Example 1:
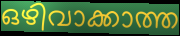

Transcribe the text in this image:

ഒഴിവാക്കാത്ത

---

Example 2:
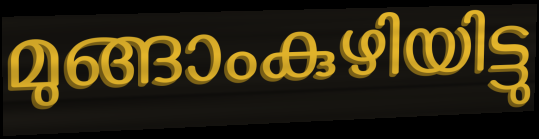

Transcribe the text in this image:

മുങ്ങാംകുഴിയിട്ടു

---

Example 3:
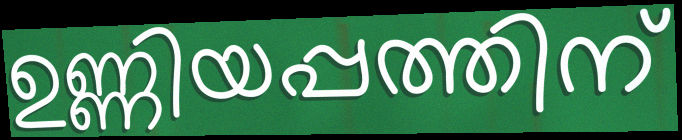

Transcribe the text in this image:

ഉണ്ണിയപ്പത്തിന്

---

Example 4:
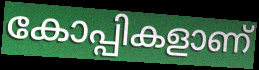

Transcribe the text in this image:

കോപ്പികളാണ്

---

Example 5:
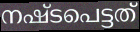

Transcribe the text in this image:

നഷ്ടപെട്ടത്